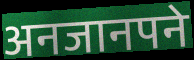
अनजानपने